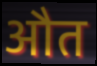
औत